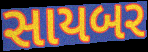
સાયબર